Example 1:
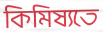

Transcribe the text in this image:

কিমিষ্যতে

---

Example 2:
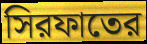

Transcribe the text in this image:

সিরফাতের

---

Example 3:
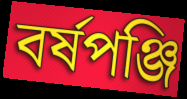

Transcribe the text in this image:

বর্ষপঞ্জি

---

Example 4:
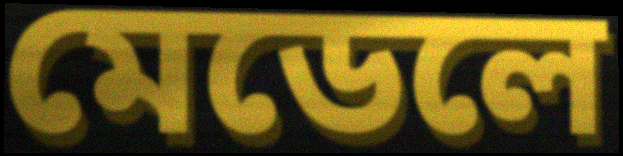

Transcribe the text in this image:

মেডেলে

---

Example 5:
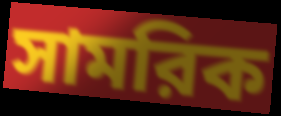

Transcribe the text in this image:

সামরিক